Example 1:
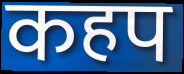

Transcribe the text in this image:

कहप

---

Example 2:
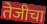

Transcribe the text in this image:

तेजीचा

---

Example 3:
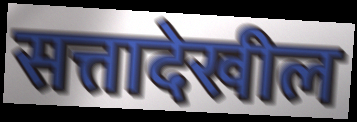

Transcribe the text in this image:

सत्तादेखील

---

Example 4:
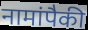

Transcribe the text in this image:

नामांपैकी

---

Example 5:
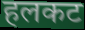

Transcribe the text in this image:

हलकट